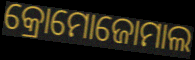
କ୍ରୋମୋଜୋମାଲ